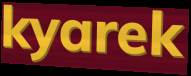
kyarek